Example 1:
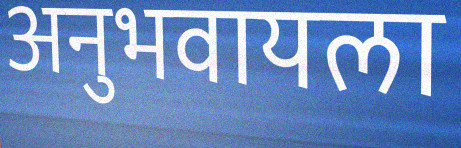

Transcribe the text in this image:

अनुभवायला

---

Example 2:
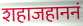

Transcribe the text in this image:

शहाजहाननं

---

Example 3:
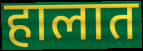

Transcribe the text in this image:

हालात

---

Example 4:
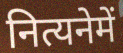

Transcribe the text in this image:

नित्यनेमें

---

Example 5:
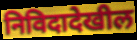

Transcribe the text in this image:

निविदादेखील